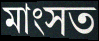
মাংসত